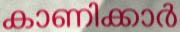
കാണിക്കാർ